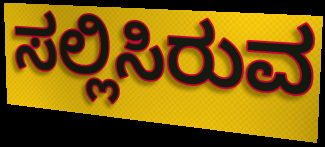
ಸಲ್ಲಿಸಿರುವ